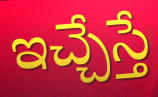
ఇచ్చేస్తే